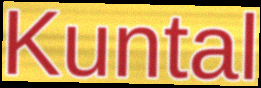
Kuntal